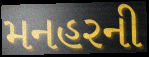
મનહરની